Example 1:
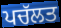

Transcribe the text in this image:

ਪਚੱਲਤ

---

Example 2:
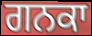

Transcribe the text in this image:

ਗਨਕਾ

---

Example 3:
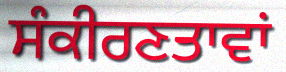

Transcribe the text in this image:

ਸੰਕੀਰਣਤਾਵਾਂ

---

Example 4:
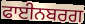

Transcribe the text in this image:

ਫਾਈਨਬਰਗ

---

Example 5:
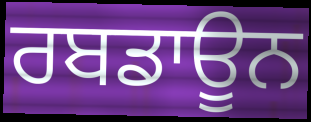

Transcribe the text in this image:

ਰਬਡਾਊਨ